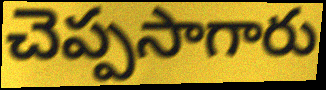
చెప్పసాగారు